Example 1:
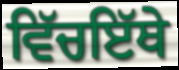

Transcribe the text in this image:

ਵਿੱਚਇੱਥੇ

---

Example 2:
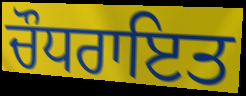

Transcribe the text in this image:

ਚੌਧਰਾਇਤ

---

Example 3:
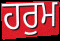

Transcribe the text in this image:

ਹਰੁਮ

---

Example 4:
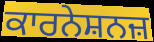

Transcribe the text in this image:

ਕਾਰਨੇਸ਼ਨਜ਼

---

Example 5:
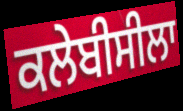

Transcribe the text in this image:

ਕਲੇਬੀਸੀਲਾ